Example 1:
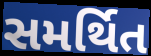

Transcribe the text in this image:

સમર્થિત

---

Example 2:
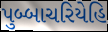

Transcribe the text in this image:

પુબ્બાચરિયેહિ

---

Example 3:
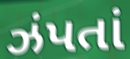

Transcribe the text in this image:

ઝંપતાં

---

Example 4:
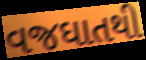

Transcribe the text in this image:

વજ્રઘાતથી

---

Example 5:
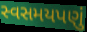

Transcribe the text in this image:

સ્વસમયપણું